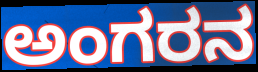
ಅಂಗರನ